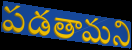
పడతామని